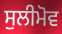
ਸੁਲੀਮੋਵ